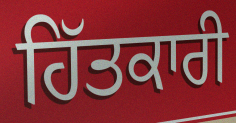
ਹਿੱਤਕਾਰੀ